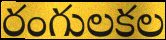
రంగులకల